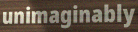
unimaginably